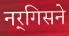
नर्गिसने